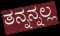
ತನ್ನನ್ನಲ್ಲ